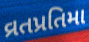
વ્રતપ્રતિમા